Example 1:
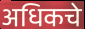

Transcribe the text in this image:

अधिकचे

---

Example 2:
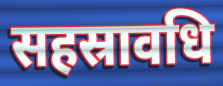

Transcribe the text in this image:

सहस्रावधि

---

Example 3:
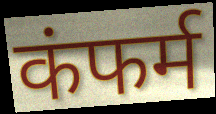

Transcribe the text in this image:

कंफर्म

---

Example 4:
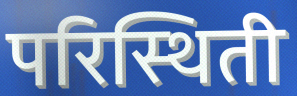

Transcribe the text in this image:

परिस्थिती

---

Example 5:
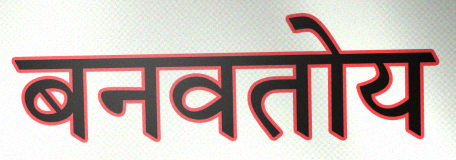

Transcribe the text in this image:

बनवतोय